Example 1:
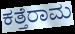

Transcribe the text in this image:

ಕತ್ತೆರಾಮ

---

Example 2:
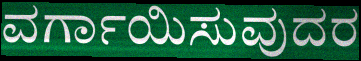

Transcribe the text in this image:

ವರ್ಗಾಯಿಸುವುದರ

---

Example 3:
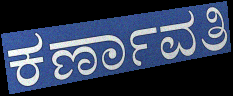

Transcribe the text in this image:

ಕರ್ಣಾವತಿ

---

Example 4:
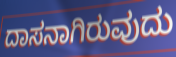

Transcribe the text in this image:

ದಾಸನಾಗಿರುವುದು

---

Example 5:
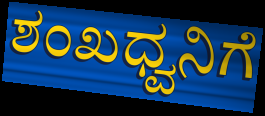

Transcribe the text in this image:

ಶಂಖಧ್ವನಿಗೆ